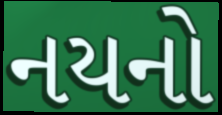
નયનો